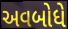
અવબોધે